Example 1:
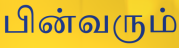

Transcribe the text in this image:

பின்வரும்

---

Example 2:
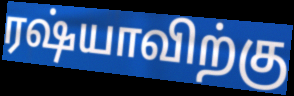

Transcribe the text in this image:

ரஷ்யாவிற்கு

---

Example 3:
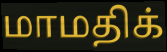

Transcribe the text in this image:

மாமதிக்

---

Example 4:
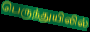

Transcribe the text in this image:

பெருந்துயிலில்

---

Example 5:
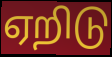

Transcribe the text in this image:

ஏறிடு